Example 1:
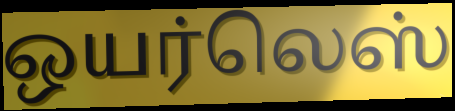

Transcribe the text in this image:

ஒயர்லெஸ்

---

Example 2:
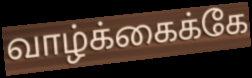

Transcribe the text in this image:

வாழ்க்கைக்கே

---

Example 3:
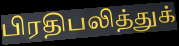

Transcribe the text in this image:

பிரதிபலித்துக்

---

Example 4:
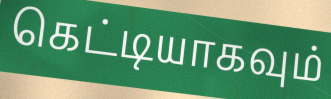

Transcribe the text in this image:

கெட்டியாகவும்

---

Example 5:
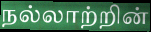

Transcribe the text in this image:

நல்லாற்றின்